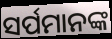
ସର୍ପମାନଙ୍କ